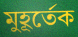
মুহূর্তেক